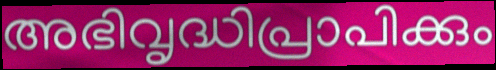
അഭിവൃദ്ധിപ്രാപിക്കും